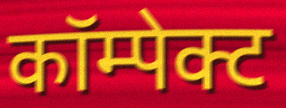
कॉम्पेक्ट